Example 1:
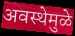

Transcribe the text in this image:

अवस्थेमुळे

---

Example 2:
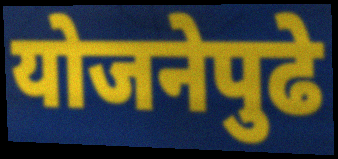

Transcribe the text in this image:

योजनेपुढे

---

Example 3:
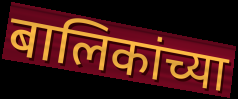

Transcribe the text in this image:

बालिकांच्या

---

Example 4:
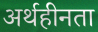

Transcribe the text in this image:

अर्थहीनता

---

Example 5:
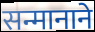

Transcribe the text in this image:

सन्मानाने